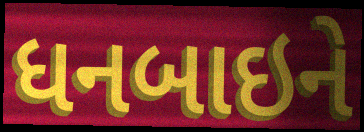
ધનબાઇને